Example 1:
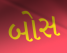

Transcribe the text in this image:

બોસ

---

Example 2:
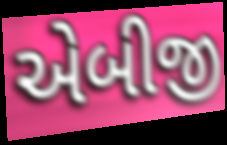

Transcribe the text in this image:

એબીજી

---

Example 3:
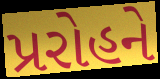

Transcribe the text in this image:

પ્રરોહને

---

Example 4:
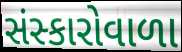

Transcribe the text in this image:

સંસ્કારોવાળા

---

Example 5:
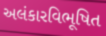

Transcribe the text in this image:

અલંકારવિભૂષિત